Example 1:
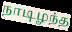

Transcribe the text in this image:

நாடிழந்த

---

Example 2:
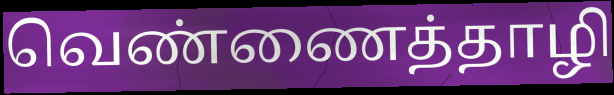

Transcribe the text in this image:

வெண்ணைத்தாழி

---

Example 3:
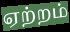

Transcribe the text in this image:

ஏற்றம்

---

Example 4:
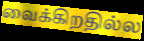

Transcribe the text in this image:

வைக்கிறதில்ல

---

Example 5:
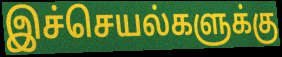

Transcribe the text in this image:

இச்செயல்களுக்கு